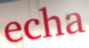
echa